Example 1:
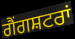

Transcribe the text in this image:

ਗੈਂਗਸ਼ਟਰਾਂ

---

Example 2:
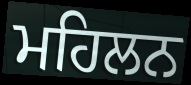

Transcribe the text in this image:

ਮਹਿਲਨ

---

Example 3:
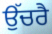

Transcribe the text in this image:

ਉੱਚਰੈ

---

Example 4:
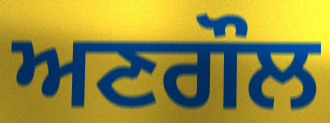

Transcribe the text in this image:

ਅਣਗੌਲ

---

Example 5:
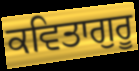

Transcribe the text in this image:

ਕਵਿਤਾਗੁਰੂ